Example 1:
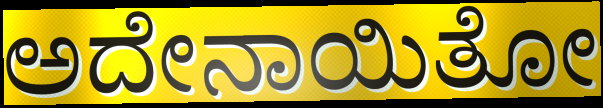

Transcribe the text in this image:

ಅದೇನಾಯಿತೋ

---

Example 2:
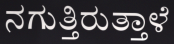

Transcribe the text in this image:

ನಗುತ್ತಿರುತ್ತಾಳೆ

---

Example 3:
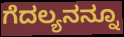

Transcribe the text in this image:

ಗೆದಲ್ಯನನ್ನೂ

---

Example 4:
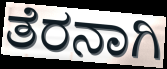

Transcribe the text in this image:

ತೆರನಾಗಿ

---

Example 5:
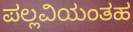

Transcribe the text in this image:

ಪಲ್ಲವಿಯಂತಹ